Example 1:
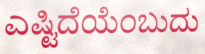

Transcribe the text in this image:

ಎಷ್ಟಿದೆಯೆಂಬುದು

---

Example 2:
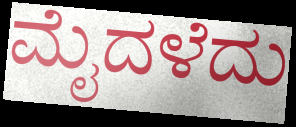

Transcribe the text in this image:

ಮೈದಳೆದು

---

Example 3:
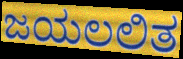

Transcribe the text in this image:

ಜಯಲಲಿತ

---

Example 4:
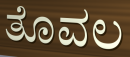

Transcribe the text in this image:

ತೊವಲ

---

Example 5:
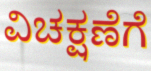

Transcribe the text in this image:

ವಿಚಕ್ಷಣೆಗೆ